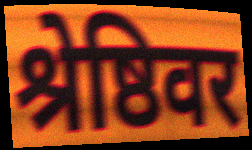
श्रेष्ठिवर